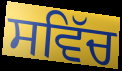
ਸਵਿੱਚ